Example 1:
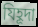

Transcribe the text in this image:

যিহূদা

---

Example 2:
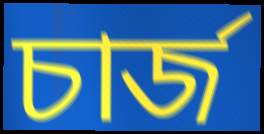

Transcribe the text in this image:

চার্জ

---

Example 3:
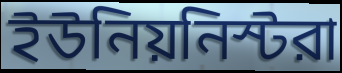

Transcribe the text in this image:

ইউনিয়নিস্টরা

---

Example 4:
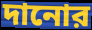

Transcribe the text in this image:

দানোর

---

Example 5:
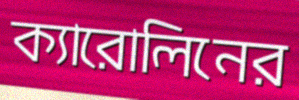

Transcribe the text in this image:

ক্যারোলিনের